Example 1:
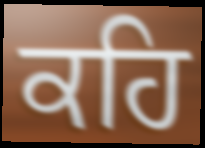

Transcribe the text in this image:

ਕਹਿ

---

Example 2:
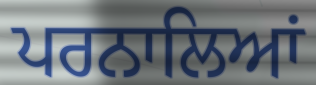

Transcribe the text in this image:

ਪਰਨਾਲਿਆਂ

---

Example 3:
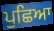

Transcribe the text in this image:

ਪੁਛਿਆ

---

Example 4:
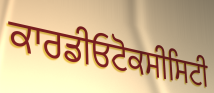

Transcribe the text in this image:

ਕਾਰਡੀਓਟੋਕਸੀਸਿਟੀ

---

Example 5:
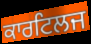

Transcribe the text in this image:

ਕਾਰਟਿਲਜ